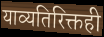
याव्यतिरिक्तही